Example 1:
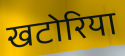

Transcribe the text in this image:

खटोरिया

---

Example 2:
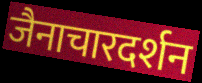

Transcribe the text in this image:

जैनाचारदर्शन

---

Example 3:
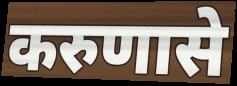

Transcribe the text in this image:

करुणासे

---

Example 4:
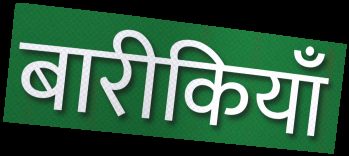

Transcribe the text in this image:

बारीकियाँ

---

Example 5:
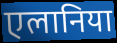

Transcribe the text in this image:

एलानिया